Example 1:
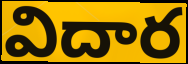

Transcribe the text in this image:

విదార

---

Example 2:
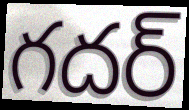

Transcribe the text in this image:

గదర్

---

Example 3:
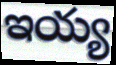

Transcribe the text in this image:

ఇయ్య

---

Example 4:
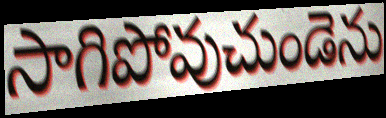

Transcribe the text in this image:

సాగిపోవుచుండెను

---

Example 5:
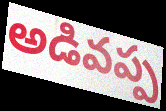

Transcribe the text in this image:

అడివప్ప